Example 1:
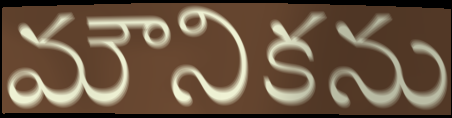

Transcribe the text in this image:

మౌనికను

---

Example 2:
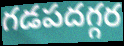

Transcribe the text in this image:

గడపదగ్గర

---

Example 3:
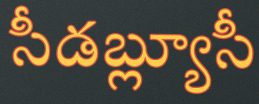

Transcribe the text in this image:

సీడబ్ల్యూసీ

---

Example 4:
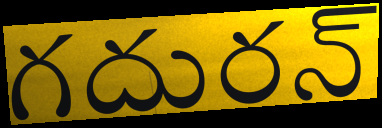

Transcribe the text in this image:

గదురన్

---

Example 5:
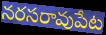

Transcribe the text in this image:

నరసరావుపేట